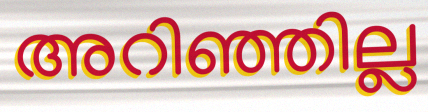
അറിഞ്ഞില്ല